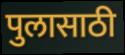
पुलासाठी